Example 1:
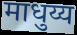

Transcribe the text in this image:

माधुय्य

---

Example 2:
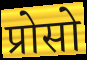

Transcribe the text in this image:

प्रोसो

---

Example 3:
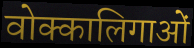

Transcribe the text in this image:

वोक्कालिगाओं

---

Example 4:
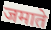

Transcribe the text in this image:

जमाते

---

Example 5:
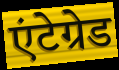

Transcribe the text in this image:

एंटेग्रेड